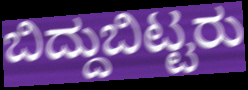
ಬಿದ್ದುಬಿಟ್ಟರು